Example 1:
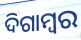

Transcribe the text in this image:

ଦିଗାମ୍ଵର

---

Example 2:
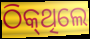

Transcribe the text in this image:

ଠିକ୍‌ଥିଲେ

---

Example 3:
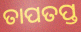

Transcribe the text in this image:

ତାପତପ୍ତ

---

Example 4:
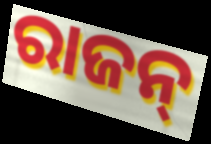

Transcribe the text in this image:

ରାଜନ୍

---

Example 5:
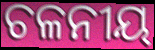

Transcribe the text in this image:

ଚଳନୀୟ